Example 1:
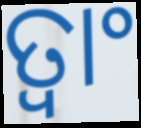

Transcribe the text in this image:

ତ୍ୱାଂ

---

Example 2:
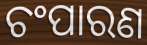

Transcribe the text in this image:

ଚଂପାରଣ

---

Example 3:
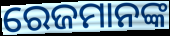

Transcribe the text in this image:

ରେଜମାନଙ୍କ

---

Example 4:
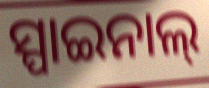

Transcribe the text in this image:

ସ୍ପାଇନାଲ୍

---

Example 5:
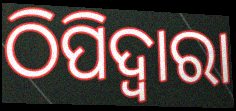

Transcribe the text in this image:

ଠିପିଦ୍ଵାରା